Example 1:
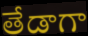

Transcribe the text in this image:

తేడాగా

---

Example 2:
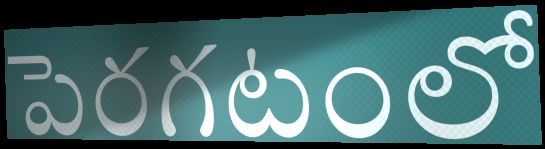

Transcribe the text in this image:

పెరగటంలో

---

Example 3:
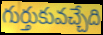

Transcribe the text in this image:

గుర్తుకువచ్చేది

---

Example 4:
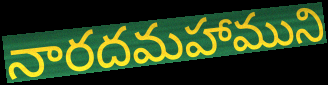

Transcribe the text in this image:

నారదమహాముని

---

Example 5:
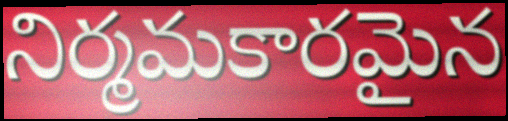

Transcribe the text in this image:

నిర్మమకారమైన